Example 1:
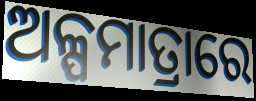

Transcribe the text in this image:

ଅଳ୍ପମାତ୍ରାରେ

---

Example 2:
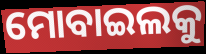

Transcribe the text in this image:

ମୋବାଇଲକୁ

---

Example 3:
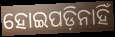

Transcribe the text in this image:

ହୋଇପଡ଼ିନାହିଁ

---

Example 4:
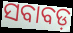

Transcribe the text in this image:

ସବାବଡ଼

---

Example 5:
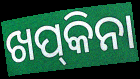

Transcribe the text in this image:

ଖପ୍‌କିନା